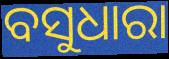
ବସୁଧାରା